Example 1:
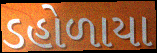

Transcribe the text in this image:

ડહોળાયા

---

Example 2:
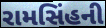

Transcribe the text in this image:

રામસિંહની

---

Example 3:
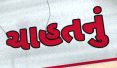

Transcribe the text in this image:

ચાહતનું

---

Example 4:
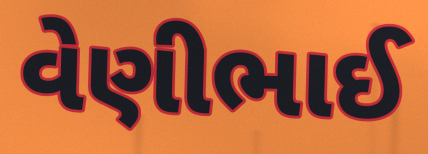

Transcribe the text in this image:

વેણીભાઈ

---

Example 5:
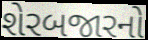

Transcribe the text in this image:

શેરબજારનો